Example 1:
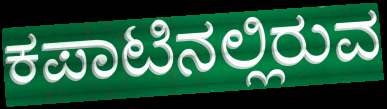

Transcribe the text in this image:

ಕಪಾಟಿನಲ್ಲಿರುವ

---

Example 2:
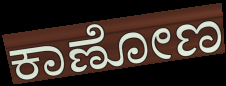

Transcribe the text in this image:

ಕಾಣೋಣ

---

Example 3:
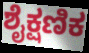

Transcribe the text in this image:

ಶೈಕ್ಷಣಿಕ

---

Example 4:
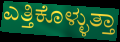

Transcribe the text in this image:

ಎತ್ತಿಕೊಳ್ಳುತ್ತಾ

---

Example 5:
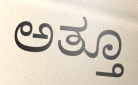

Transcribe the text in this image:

ಅತ್ತೂ